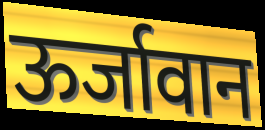
ऊर्जावान